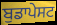
ਬੁਡਾਪੇਸਟ